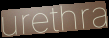
urethra